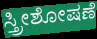
ಸ್ತ್ರೀಶೋಷಣೆ